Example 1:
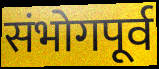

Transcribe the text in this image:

संभोगपूर्व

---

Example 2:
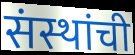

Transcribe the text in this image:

संस्थांची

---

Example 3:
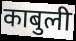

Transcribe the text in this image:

काबुली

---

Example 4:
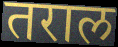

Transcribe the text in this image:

तराल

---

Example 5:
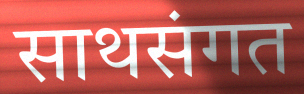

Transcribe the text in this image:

साथसंगत